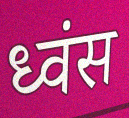
ध्वंस